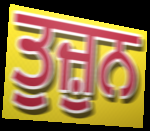
ਤੁਜ਼ੁਨ